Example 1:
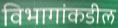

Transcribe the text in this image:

विभागांकडील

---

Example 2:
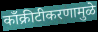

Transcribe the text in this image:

काँक्रीटीकरणामुळे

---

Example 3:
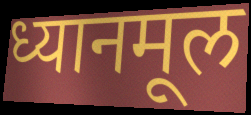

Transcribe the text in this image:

ध्यानमूल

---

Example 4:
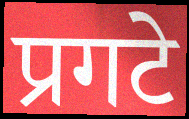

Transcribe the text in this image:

प्रगटे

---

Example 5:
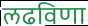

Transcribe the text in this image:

लढविणा